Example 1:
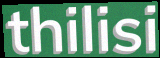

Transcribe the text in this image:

thilisi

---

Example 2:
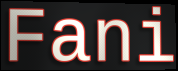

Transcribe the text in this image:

Fani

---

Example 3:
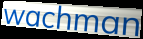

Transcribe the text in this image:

wachman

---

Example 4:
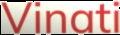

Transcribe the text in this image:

Vinati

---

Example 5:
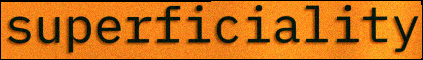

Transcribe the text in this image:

superficiality